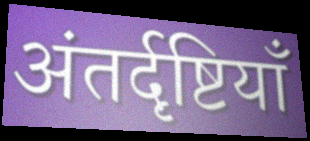
अंतर्दृष्टियाँ